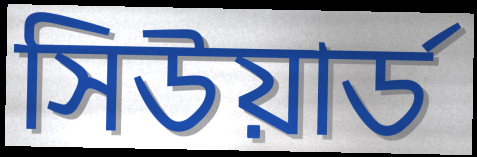
সিউয়ার্ড